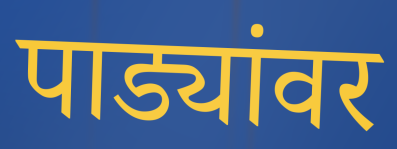
पाड्यांवर